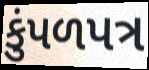
કુંપળપત્ર